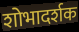
शोभादर्शक